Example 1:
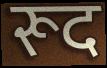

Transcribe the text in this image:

रूद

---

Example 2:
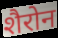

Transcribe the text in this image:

शैरोन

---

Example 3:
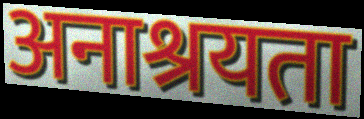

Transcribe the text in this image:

अनाश्रयता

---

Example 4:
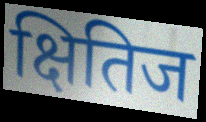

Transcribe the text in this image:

क्षितिज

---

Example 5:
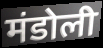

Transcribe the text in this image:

मंडोली